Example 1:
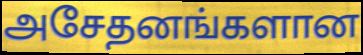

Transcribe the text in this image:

அசேதனங்களான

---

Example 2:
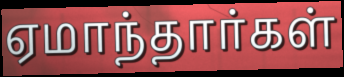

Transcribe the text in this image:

ஏமாந்தார்கள்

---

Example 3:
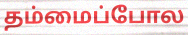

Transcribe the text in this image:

தம்மைப்போல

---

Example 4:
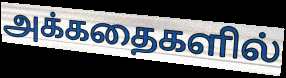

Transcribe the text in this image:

அக்கதைகளில்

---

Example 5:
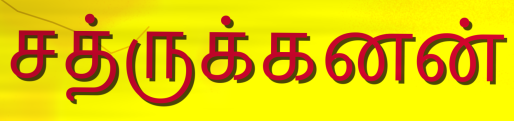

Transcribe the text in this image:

சத்ருக்கனன்